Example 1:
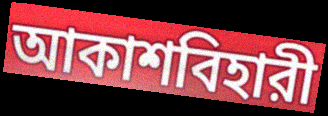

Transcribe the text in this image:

আকাশবিহারী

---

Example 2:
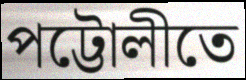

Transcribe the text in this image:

পট্টোলীতে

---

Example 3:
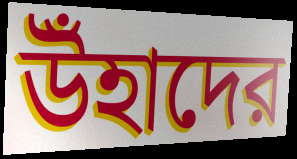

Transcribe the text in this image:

উঁহাদের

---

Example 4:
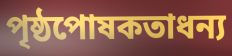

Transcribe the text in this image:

পৃষ্ঠপোষকতাধন্য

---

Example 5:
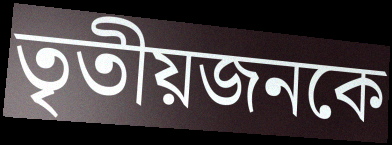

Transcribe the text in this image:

তৃতীয়জনকে